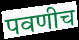
पवणीच